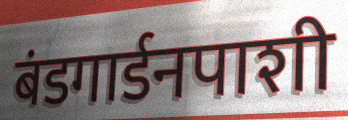
बंडगार्डनपाशी